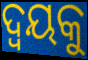
ଦ୍ଵୟକୁ